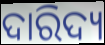
ଦାରିଦ୍ୟ